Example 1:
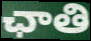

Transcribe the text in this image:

ఛాతి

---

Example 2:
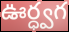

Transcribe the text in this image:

ఊర్ధ్వగ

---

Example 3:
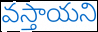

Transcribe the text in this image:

వస్తాయని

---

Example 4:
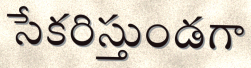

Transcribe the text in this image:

సేకరిస్తుండగా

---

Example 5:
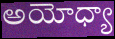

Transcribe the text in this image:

అయోధ్యా